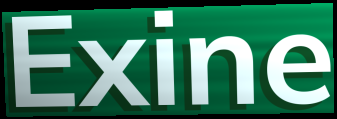
Exine